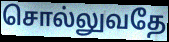
சொல்லுவதே